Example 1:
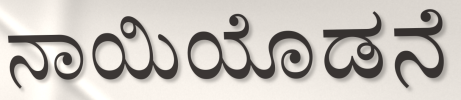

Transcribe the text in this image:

ನಾಯಿಯೊಡನೆ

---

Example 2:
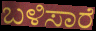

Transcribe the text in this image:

ಬಳಿಸಾರೆ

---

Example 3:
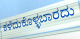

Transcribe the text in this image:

ಕಳೆದುಕೊಳ್ಳಬಾರದು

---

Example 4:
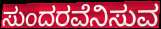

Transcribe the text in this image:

ಸುಂದರವೆನಿಸುವ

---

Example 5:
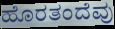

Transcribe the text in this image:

ಹೊರತಂದೆವು